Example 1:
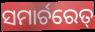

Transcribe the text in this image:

ସମାର୍ଚରେତ୍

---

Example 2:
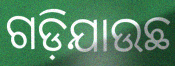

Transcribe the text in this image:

ଗଡ଼ିଯାଉଛ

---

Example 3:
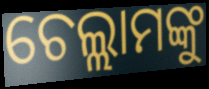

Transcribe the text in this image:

ଚେଲ୍ଲାମଙ୍କୁ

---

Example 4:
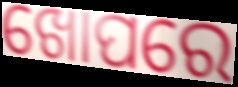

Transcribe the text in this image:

ଖୋପରେ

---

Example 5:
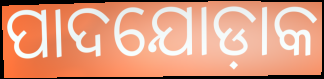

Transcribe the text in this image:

ପାଦଯୋଡ଼ାକ